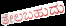
ತೇಲಬಹುದು